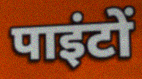
पाइंटों